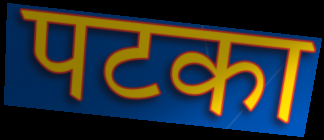
पटका